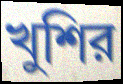
খুশির